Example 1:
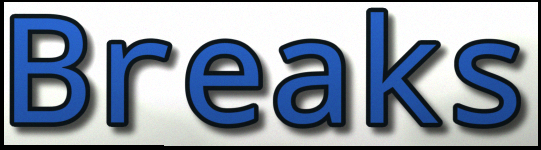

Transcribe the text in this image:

Breaks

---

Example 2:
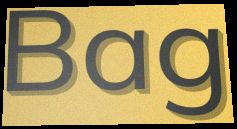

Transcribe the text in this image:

Bag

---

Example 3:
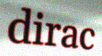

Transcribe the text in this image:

dirac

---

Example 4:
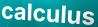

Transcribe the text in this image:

calculus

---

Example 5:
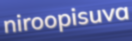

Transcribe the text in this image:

niroopisuva